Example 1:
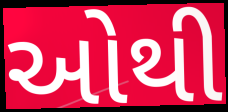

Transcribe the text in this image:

ઓથી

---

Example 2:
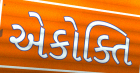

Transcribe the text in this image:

એકોક્તિ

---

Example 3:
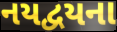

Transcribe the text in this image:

નયદ્વયના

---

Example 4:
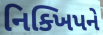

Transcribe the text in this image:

નિક્ખિપને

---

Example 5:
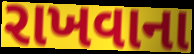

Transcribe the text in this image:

રાખવાના